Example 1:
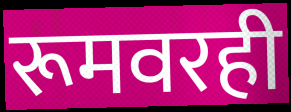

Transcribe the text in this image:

रूमवरही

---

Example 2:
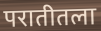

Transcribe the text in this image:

परातीतला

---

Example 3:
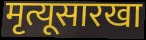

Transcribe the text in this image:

मृत्यूसारखा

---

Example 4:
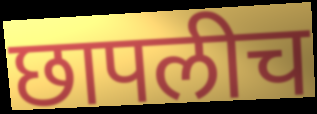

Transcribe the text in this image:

छापलीच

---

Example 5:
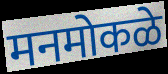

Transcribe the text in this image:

मनमोकळे